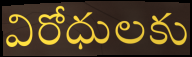
విరోధులకు